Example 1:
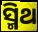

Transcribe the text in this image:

ସ୍ମିଥ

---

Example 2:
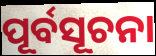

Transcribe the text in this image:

ପୂର୍ବସୂଚନା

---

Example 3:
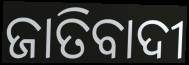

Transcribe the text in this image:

ଜାତିବାଦୀ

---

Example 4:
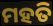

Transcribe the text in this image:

ମହତି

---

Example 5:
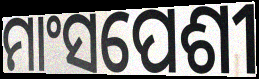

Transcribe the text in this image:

ମାଂସପେଶୀ